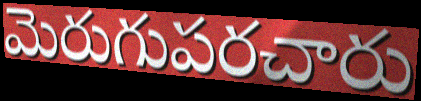
మెరుగుపరచారు